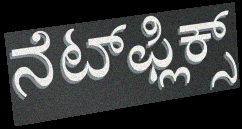
ನೆಟ್‌ಫ್ಲಿಕ್ಸ್